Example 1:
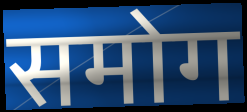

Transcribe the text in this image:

समोग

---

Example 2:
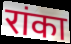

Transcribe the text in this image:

रांका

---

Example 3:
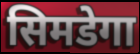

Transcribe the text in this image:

सिमडेगा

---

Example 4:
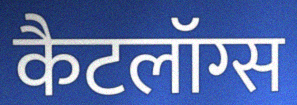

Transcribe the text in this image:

कैटलॉग्स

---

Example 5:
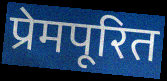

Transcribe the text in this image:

प्रेमपूरित